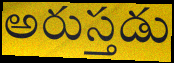
అరుస్తడు